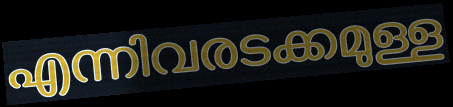
എന്നിവരടക്കമുള്ള